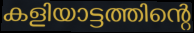
കളിയാട്ടത്തിന്റെ